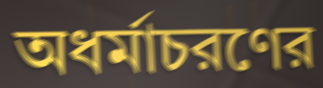
অধর্মাচরণের